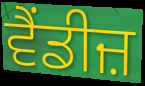
ਵੈਂਡੀਜ਼